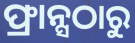
ଫ୍ରାନ୍ସଠାରୁ